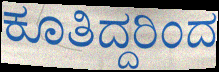
ಕೂತಿದ್ದರಿಂದ